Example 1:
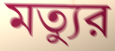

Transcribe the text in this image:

মত্যুর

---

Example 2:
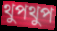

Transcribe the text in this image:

থুপথুপ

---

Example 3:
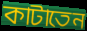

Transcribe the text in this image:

কাটাতেন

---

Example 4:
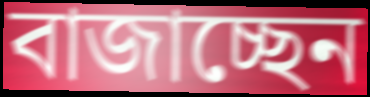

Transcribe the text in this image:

বাজাচ্ছেন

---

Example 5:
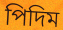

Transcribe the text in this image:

পিদিম